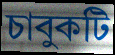
চাবুকটি